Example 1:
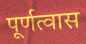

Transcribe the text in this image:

पूर्णत्वास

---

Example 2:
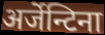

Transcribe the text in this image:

अर्जेन्टिना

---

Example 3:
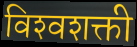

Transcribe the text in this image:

विश्वशक्ती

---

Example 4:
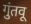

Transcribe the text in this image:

गुंतवू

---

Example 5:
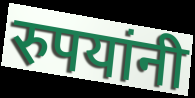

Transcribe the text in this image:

रुपयांनी